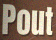
Pout